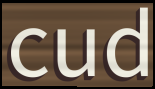
cud